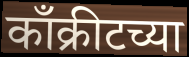
काँक्रीटच्या